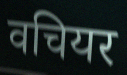
वचियर